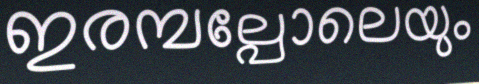
ഇരമ്പല്പോലെയും